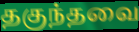
தகுந்தவை